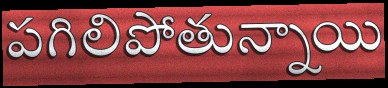
పగిలిపోతున్నాయి